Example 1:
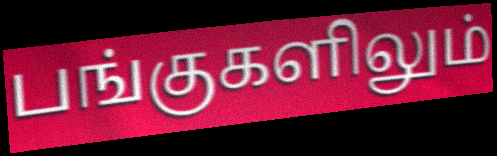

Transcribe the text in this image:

பங்குகளிலும்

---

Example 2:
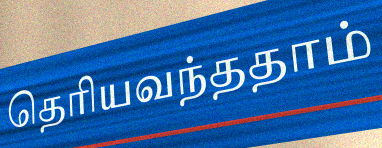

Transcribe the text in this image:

தெரியவந்ததாம்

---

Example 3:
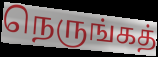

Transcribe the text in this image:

நெருங்கத்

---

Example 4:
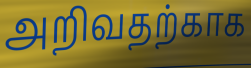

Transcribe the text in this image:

அறிவதற்காக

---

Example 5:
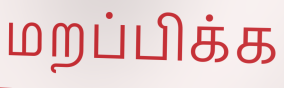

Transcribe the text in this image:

மறப்பிக்க